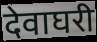
देवाघरी